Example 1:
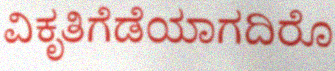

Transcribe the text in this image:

ವಿಕೃತಿಗೆಡೆಯಾಗದಿರೊ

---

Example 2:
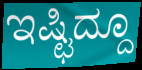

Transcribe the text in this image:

ಇಷ್ಟಿದ್ದೂ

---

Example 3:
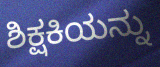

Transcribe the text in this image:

ಶಿಕ್ಷಕಿಯನ್ನು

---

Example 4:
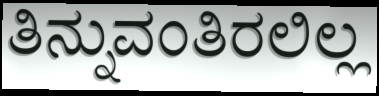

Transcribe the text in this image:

ತಿನ್ನುವಂತಿರಲಿಲ್ಲ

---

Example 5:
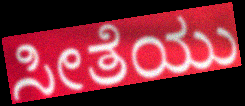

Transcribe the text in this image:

ಸೀತೆಯು